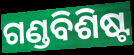
ଗଣ୍ଡବିଶିଷ୍ଟ